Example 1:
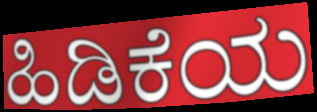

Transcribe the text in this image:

ಹಿಡಿಕೆಯ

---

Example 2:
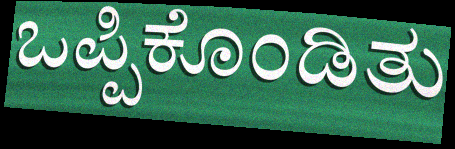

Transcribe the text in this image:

ಒಪ್ಪಿಕೊಂಡಿತು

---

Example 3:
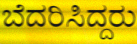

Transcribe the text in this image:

ಬೆದರಿಸಿದ್ದರು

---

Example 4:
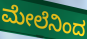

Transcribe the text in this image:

ಮೇಲೆನಿಂದ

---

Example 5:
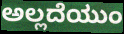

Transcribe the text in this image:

ಅಲ್ಲದೆಯುಂ